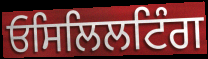
ਓਸਿਲਿਲਟਿੰਗ